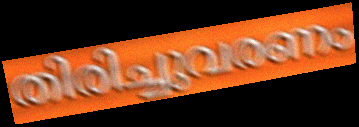
തിരിച്ചുവരണം